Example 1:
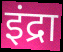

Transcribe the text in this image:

इंद्रा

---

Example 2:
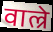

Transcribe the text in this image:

वाल्रे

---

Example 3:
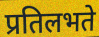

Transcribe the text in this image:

प्रतिलभते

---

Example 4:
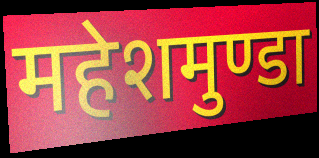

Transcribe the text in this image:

महेशमुण्डा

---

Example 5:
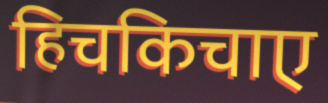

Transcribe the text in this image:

हिचकिचाए